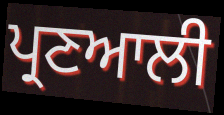
ਪ੍ਰਣਆਲੀ